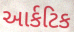
આર્કટિક